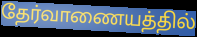
தேர்வாணையத்தில்